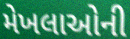
મેખલાઓની